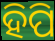
ହିପି